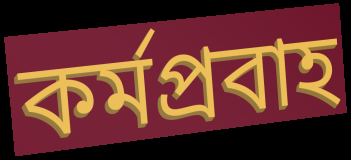
কর্মপ্রবাহ